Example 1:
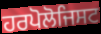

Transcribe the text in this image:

ਹਰਪੋਲੋਜਿਸਟ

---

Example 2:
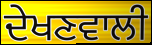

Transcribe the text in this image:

ਦੇਖਣਵਾਲੀ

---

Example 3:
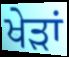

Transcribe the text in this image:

ਖੇੜਾਂ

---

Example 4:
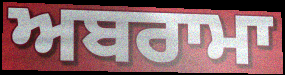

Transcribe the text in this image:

ਅਬਰਾਮਾ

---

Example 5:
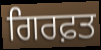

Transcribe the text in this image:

ਗਿਰਫ਼ਤ